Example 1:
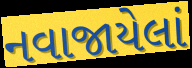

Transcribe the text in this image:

નવાજાયેલાં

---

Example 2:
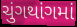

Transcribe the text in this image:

ચુંગથાંગમાં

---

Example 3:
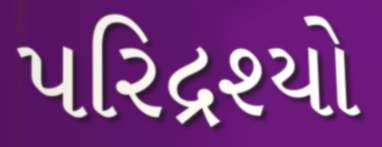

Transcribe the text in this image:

પરિદ્રશ્યો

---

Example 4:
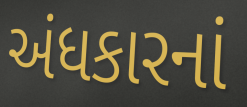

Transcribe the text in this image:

અંધકારનાં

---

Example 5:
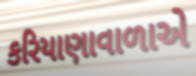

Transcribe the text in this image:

કરિયાણાવાળાએ